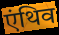
एंथिव